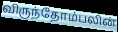
விருந்தோம்பலின்